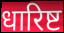
धारिष्ट